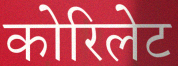
कोरिलेट